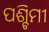
ପଶ୍ଚିମୀ